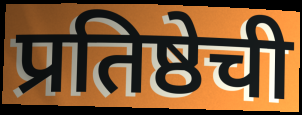
प्रतिष्ठेची